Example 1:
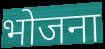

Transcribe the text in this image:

भोजना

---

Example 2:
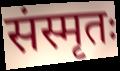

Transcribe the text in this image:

संस्मृतः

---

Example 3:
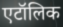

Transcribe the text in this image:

एटॉलिक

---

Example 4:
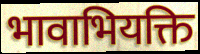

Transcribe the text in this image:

भावाभियक्ति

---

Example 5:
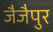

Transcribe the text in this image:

जैजैपुर